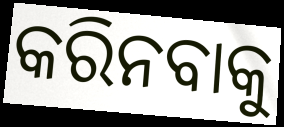
କରିନବାକୁ